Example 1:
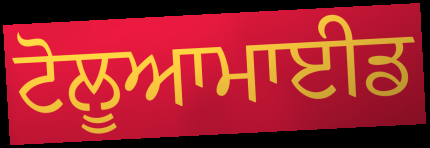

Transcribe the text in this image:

ਟੋਲੂਆਮਾਈਡ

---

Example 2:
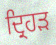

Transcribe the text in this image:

ਦ੍ਰਿਹੜ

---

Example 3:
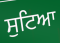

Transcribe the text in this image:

ਸੁਟਿਆ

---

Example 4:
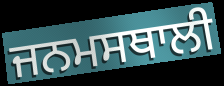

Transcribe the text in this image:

ਜਨਮਸਥਾਲੀ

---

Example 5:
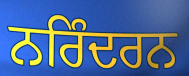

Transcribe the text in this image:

ਨਰਿੰਦਰਨ